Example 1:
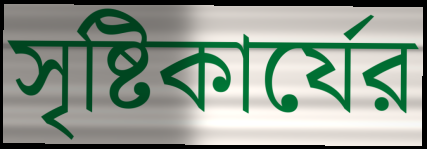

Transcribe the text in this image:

সৃষ্টিকার্যের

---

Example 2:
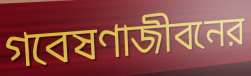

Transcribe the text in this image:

গবেষণাজীবনের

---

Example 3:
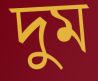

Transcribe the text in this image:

দুম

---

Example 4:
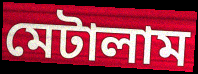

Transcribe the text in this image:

মেটালাম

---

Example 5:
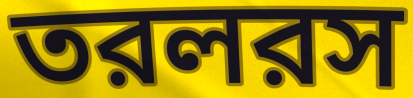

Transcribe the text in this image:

তরলরস